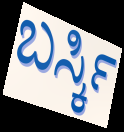
ಬರ್ಸ್ಕಿ